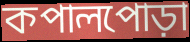
কপালপোড়া